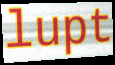
lupt